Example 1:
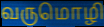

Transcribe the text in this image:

வருமொழி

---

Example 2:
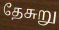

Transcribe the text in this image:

தேசுறு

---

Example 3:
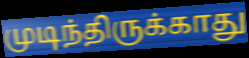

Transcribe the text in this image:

முடிந்திருக்காது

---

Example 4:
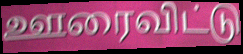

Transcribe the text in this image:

ஊரைவிட்டு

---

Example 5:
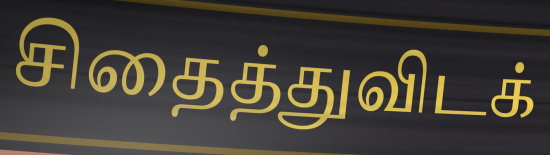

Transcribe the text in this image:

சிதைத்துவிடக்